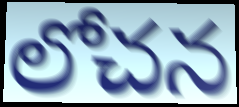
లోచన